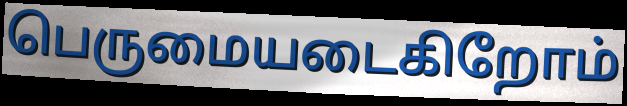
பெருமையடைகிறோம்